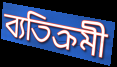
ব্যতিক্রমী